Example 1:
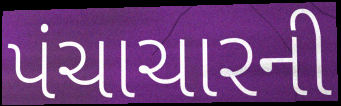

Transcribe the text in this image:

પંચાચારની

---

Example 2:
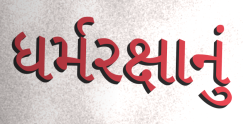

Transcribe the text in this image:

ધર્મરક્ષાનું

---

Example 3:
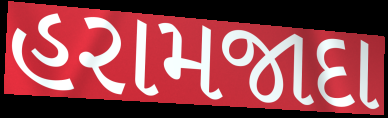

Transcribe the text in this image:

હરામજાદા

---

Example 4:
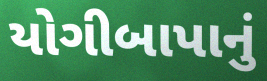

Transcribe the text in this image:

યોગીબાપાનું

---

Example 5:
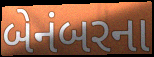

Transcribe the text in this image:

બેનંબરના